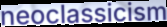
neoclassicism